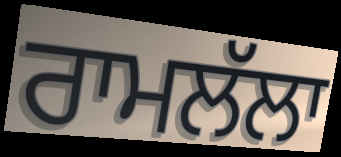
ਰਾਮਲੱਲਾ